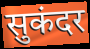
सुकंदर